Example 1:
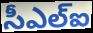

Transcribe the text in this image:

సీఎల్ఐ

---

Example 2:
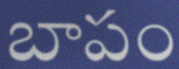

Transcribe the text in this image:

బాపం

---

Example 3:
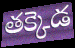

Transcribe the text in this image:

తక్కెడ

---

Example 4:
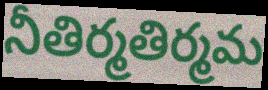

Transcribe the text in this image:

నీతిర్మతిర్మమ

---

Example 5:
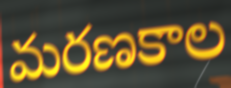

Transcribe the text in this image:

మరణకాల